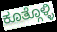
ಕೂತ್ಗೊಳ್ಳಿ